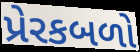
પ્રેરકબળો